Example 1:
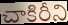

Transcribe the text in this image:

చాకిరీని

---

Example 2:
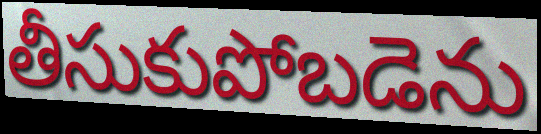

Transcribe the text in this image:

తీసుకుపోబడెను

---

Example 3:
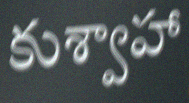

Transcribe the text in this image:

కుశ్వాహా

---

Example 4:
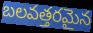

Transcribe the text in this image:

బలవత్తరమైన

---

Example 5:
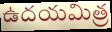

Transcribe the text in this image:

ఉదయమిత్ర